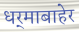
धर्माबाहेर